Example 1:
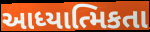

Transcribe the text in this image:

આધ્યાત્મિકતા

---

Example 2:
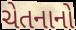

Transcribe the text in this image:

ચેતનાનો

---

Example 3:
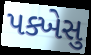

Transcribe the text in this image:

પક્ખેસુ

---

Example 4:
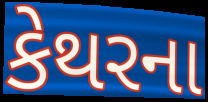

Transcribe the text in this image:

કેથરના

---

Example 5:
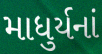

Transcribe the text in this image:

માધુર્યનાં